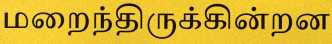
மறைந்திருக்கின்றன